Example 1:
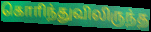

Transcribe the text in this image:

கொரிந்துவிலிருந்த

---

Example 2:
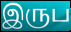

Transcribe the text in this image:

இருப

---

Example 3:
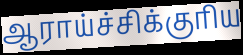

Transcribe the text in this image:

ஆராய்ச்சிக்குரிய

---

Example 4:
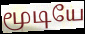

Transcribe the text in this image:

மூடியே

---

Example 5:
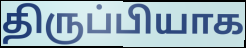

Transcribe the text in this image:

திருப்பியாக